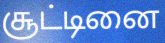
சூட்டினை